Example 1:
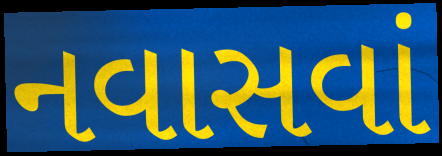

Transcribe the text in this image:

નવાસવાં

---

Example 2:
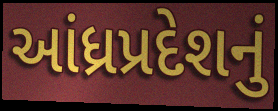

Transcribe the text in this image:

આંધ્રપ્રદેશનું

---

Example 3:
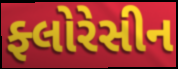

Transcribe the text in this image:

ફ્લોરેસીન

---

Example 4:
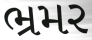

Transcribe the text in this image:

ભ્રમર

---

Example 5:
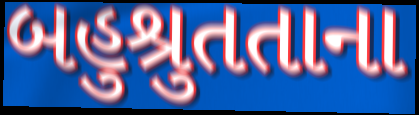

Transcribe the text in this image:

બહુશ્રુતતાના